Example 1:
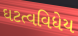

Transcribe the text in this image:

ઘટત્વવિધેય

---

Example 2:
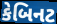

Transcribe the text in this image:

કેબિનટ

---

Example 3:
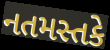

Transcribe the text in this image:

નતમસ્તકે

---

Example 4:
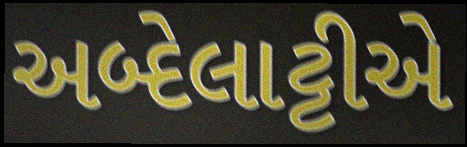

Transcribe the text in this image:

અબ્દેલાટ્ટીએ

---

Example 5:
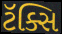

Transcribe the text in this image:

ટૅક્સિ